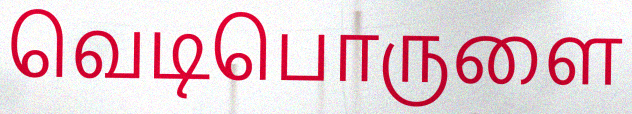
வெடிபொருளை